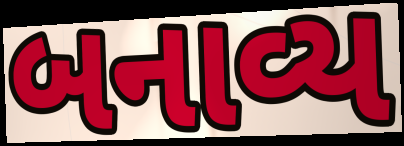
બનાવ્ય